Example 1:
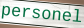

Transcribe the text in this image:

personel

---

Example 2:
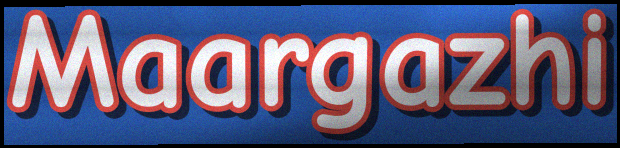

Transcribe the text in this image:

Maargazhi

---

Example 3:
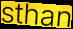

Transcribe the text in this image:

sthan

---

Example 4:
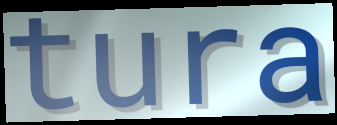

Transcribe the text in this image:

tura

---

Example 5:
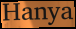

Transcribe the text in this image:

Hanya